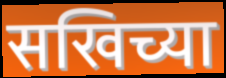
सखिच्या